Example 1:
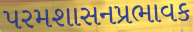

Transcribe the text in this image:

પરમશાસનપ્રભાવક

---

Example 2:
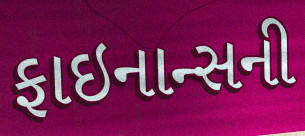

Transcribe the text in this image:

ફાઇનાન્સની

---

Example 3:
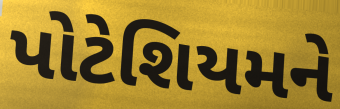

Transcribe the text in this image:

પોટેશિયમને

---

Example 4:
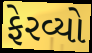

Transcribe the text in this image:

ફેરવ્યો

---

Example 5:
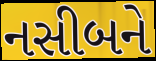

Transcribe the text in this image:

નસીબને